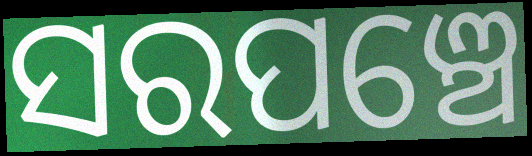
ସରପଞ୍ଚେ